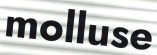
molluse